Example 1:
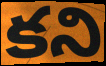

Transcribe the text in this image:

కని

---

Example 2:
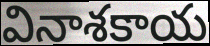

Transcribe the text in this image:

వినాశకాయ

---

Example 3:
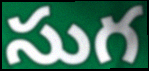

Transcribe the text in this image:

సుగ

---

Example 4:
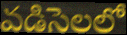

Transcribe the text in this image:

వడిసెలలో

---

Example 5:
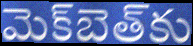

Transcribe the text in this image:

మెక్‌బెత్‌కు